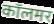
कॉलमर